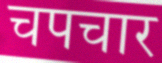
चपचार